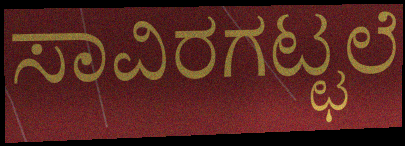
ಸಾವಿರಗಟ್ಟಲೆ